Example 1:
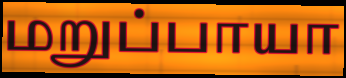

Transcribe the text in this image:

மறுப்பாயா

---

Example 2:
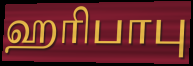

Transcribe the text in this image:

ஹரிபாபு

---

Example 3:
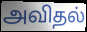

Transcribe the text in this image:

அவிதல்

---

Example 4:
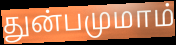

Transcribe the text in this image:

துன்பமுமாம்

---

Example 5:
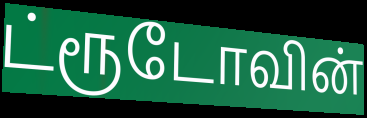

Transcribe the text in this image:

ட்ரூடோவின்